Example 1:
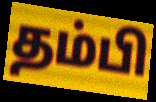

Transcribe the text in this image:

தம்பி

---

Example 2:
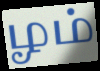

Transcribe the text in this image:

ழம்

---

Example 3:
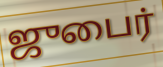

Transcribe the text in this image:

ஜுபைர்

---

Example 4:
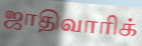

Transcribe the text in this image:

ஜாதிவாரிக்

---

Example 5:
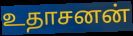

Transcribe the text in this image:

உதாசனன்